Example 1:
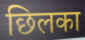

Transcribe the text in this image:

छिलका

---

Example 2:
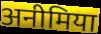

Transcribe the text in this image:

अनीमिया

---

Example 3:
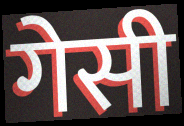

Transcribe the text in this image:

गेसी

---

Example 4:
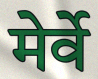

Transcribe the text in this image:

मेर्वे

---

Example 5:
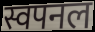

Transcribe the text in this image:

स्वपनल